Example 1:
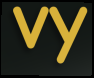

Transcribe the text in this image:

vy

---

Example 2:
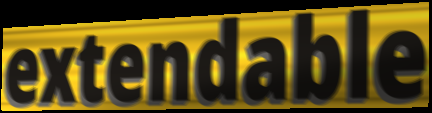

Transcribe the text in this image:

extendable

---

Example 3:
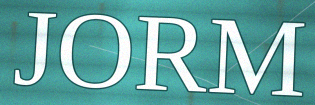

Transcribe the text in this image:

JORM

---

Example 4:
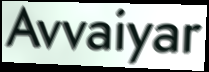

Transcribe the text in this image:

Avvaiyar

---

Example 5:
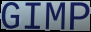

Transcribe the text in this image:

GIMP